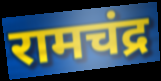
रामचंद्र